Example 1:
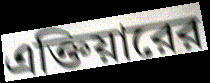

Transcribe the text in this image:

এক্তিয়ারের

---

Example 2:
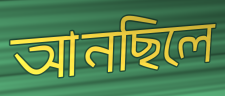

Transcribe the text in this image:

আনছিলে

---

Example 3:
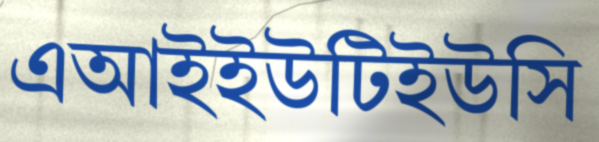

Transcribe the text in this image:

এআইইউটিইউসি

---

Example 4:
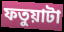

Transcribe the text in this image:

ফতুয়াটা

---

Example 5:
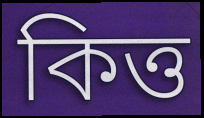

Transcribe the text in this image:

কিত্ত